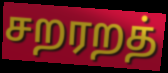
சறரறத்